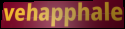
vehapphale